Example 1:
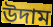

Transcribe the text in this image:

উদাম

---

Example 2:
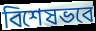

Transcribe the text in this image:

বিশেষভবে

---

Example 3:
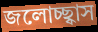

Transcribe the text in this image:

জলোচ্ছ্বাস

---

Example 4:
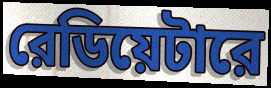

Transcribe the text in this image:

রেডিয়েটারে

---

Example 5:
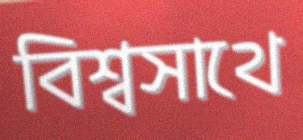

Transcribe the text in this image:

বিশ্বসাথে